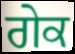
ਗੇਕ